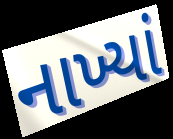
નાખ્યાં